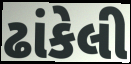
ઢાંકેલી